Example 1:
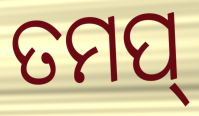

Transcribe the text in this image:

ତମପ୍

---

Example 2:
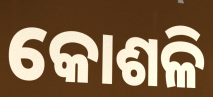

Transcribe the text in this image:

କୋଶଳି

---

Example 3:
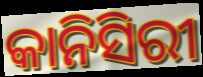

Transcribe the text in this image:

କାନିସିରୀ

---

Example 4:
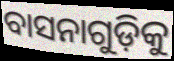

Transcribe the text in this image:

ବାସନାଗୁଡ଼ିକୁ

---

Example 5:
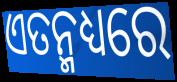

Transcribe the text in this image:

ଏତନ୍ମଧ୍ୟରେ